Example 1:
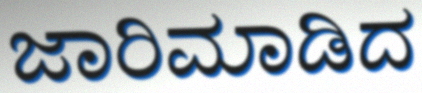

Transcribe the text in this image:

ಜಾರಿಮಾಡಿದ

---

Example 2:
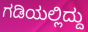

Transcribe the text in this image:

ಗಡಿಯಲ್ಲಿದ್ದು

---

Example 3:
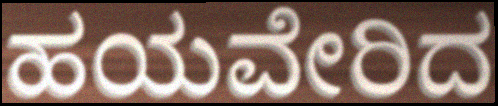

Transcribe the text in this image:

ಹಯವೇರಿದ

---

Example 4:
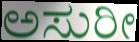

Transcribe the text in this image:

ಅಸುರೀ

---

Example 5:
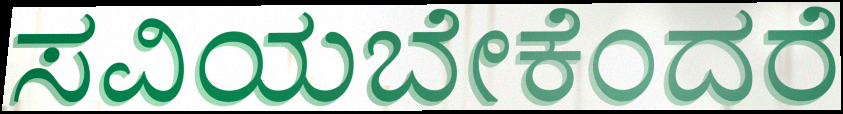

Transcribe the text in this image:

ಸವಿಯಬೇಕೆಂದರೆ